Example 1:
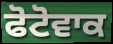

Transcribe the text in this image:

ਫੋਟੋਵਾਕ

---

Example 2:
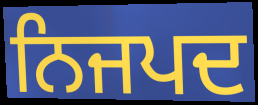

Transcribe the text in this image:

ਨਿਜਪਦ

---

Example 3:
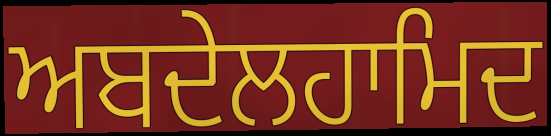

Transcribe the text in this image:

ਅਬਦੇਲਹਾਮਿਦ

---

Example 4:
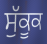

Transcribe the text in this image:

ਸੁੱਕੂਕ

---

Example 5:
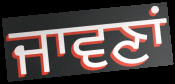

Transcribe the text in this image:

ਜਾਵਣਾਂ